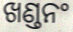
ଖଣ୍ଡନଂ